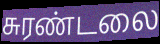
சுரண்டலை